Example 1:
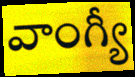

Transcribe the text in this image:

వాంగ్యీ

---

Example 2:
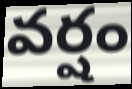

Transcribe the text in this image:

వర్షం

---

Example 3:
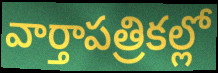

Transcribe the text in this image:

వార్తాపత్రికల్లో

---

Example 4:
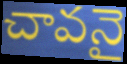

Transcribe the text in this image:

చావనై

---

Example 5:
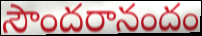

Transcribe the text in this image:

సౌందరానందం